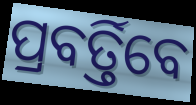
ପ୍ରବର୍ତ୍ତିବେ